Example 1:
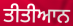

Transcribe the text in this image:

ਤੀਤੀਆਨ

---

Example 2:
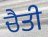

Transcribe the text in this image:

ਚੈਤੀ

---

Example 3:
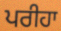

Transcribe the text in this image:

ਪਰੀਹਾ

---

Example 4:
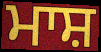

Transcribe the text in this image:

ਮਾਸ਼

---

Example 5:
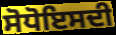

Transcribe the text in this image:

ਸੋਧੋਇਸਦੀ